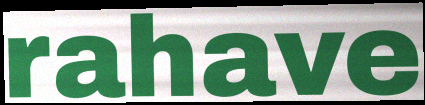
rahave